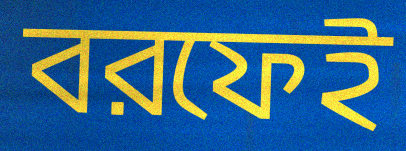
বরফেই